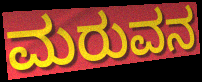
ಮರುವನ